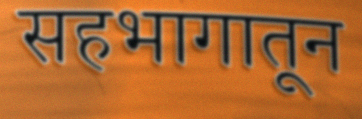
सहभागातून